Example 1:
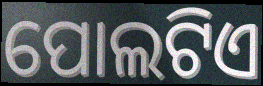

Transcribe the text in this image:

ପୋଲଟିଏ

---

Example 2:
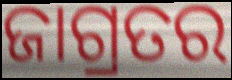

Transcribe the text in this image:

ଜାଗ୍ରତର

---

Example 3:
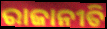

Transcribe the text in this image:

ରାଜାନୀତି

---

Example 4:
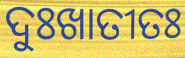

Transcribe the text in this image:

ଦୁଃଖାତୀତଃ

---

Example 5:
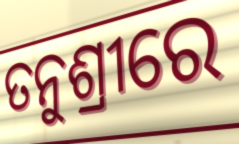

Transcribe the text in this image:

ତନୁଶ୍ରୀରେ